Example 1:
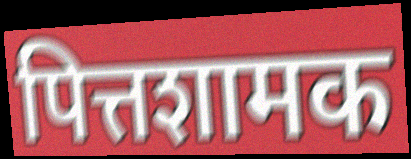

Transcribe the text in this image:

पित्तशामक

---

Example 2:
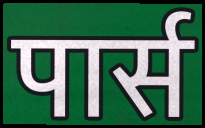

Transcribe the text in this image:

पार्स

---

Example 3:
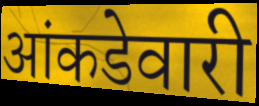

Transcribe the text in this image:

आंकडेवारी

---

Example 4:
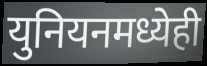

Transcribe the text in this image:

युनियनमध्येही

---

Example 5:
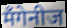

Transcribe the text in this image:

मँगेनीज